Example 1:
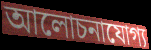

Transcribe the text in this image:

আলোচনাযোগ্য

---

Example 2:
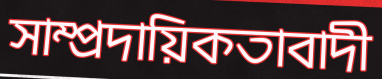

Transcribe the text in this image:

সাম্প্রদায়িকতাবাদী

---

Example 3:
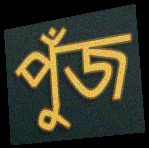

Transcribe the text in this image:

পুঁজ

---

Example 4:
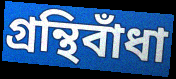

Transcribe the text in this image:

গ্রন্থিবাঁধা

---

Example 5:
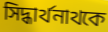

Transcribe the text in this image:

সিদ্ধার্থনাথকে